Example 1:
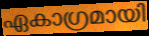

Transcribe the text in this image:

ഏകാഗ്രമായി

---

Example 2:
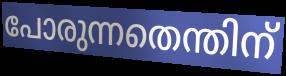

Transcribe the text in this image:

പോരുന്നതെന്തിന്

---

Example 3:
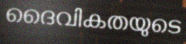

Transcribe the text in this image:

ദൈവികതയുടെ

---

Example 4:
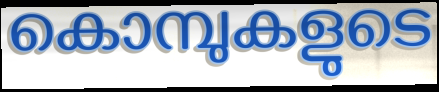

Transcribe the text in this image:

കൊമ്പുകളുടെ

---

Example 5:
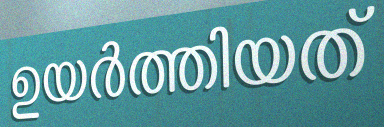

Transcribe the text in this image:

ഉയർത്തിയത്